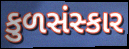
કુળસંસ્કાર